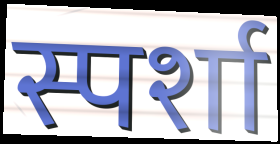
स्पर्शा